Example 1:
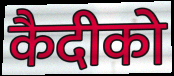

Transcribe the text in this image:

कैदीको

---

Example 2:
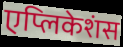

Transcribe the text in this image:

एप्लिकेशंस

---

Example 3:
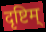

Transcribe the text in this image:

दृष्टिम्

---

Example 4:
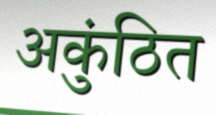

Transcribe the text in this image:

अकुंठित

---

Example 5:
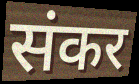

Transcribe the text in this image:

संकर